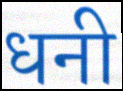
धनी